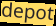
depot